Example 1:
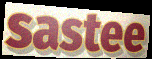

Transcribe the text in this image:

sastee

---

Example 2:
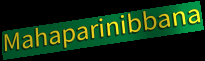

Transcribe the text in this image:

Mahaparinibbana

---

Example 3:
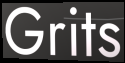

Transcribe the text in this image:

Grits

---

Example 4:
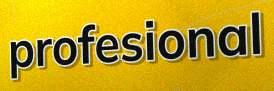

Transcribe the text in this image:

profesional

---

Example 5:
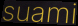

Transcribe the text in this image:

suami